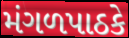
મંગળપાઠકે